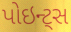
પોઇન્ટ્સ